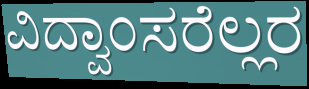
ವಿದ್ವಾಂಸರೆಲ್ಲರ